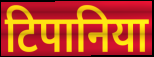
टिपानिया